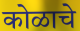
कोळाचे